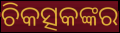
ଚିକତ୍ସକଙ୍କର